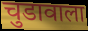
चुडावाला